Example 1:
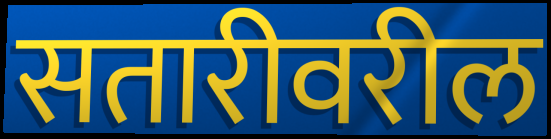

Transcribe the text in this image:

सतारीवरील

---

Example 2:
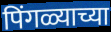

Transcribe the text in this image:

पिंगळ्याच्या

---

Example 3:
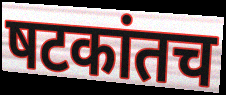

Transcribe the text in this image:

षटकांतच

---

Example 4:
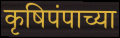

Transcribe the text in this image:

कृषिपंपाच्या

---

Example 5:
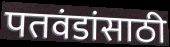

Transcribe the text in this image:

पतवंडांसाठी